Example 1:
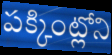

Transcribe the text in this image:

పక్కింట్లోని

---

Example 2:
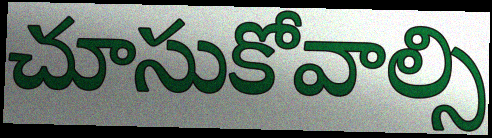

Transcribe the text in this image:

చూసుకోవాల్సి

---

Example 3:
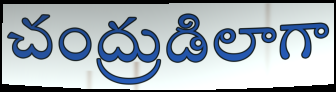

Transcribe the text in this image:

చంద్రుడిలాగా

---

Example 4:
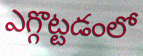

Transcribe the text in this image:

ఎగ్గొట్టడంలో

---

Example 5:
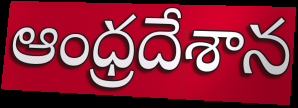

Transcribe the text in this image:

ఆంధ్రదేశాన